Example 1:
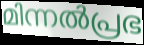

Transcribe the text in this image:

മിന്നൽപ്രഭ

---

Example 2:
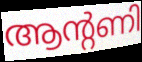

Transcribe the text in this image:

ആന്റണി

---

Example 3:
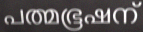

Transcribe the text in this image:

പത്മഭൂഷന്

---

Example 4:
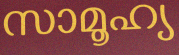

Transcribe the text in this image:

സാമൂഹ്യ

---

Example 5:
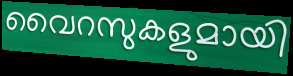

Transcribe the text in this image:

വൈറസുകളുമായി